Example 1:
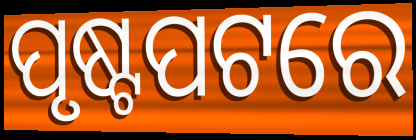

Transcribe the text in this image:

ପୃଷ୍ଟପଟରେ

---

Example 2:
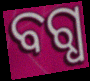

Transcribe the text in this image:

ବଗ୍ଧ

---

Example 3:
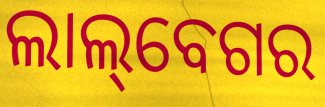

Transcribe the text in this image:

ଲାଲ୍‌ବେଗର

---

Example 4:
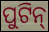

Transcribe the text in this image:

ପୁଟିନ୍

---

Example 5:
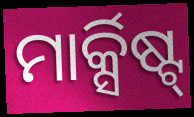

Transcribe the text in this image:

ମାର୍କ୍ସିଷ୍ଟ୍